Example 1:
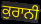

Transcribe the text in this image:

ਕੁਰਾਨੀ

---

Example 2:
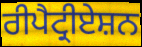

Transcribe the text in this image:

ਰੀਪੈਟ੍ਰੀਏਸ਼ਨ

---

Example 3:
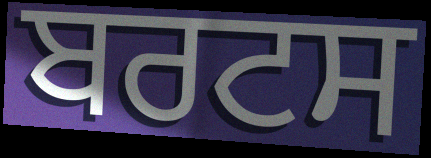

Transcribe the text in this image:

ਬਰਟਸ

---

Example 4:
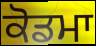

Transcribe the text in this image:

ਕੋਡਮਾ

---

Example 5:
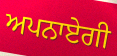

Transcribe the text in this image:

ਅਪਨਾਏਗੀ